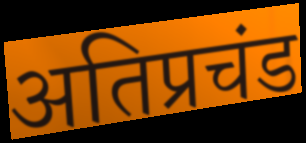
अतिप्रचंड